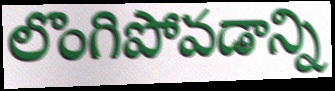
లొంగిపోవడాన్ని